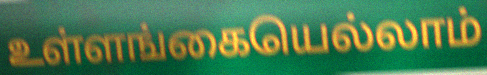
உள்ளங்கையெல்லாம்